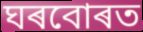
ঘৰবোৰত